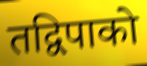
तद्विपाको